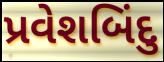
પ્રવેશબિંદુ